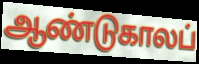
ஆண்டுகாலப்